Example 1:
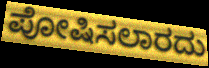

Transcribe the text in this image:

ಪೋಷಿಸಲಾರದು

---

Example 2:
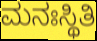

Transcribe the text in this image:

ಮನಃಸ್ಥಿತಿ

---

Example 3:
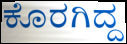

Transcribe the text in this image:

ಕೊರಗಿದ್ದ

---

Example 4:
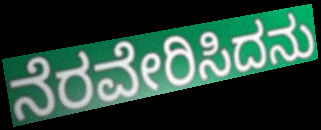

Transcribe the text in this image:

ನೆರವೇರಿಸಿದನು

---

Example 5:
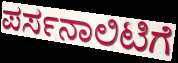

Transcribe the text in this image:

ಪರ್ಸನಾಲಿಟಿಗೆ